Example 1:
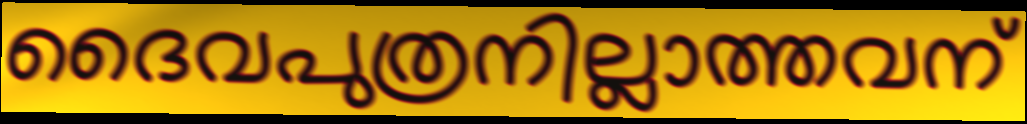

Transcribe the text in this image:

ദൈവപുത്രനില്ലാത്തവന്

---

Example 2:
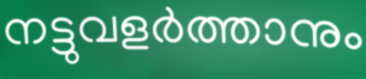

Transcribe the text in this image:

നട്ടുവളർത്താനും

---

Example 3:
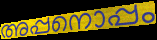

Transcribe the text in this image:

അപ്പനൊപ്പം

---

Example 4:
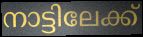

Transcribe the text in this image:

നാട്ടിലേക്ക്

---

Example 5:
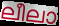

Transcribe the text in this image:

ലീലാ